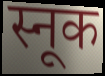
स्नूक